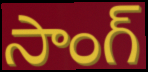
సాంగ్